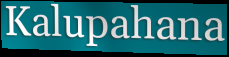
Kalupahana